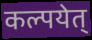
कल्पयेत्